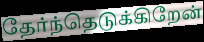
தேர்ந்தெடுக்கிறேன்